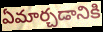
ఏమార్చడానికి